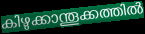
കിഴുക്കാന്തൂക്കത്തിൽ